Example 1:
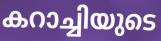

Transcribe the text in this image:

കറാച്ചിയുടെ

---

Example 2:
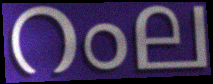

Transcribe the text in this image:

റംല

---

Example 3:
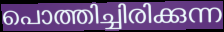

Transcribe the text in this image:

പൊത്തിച്ചിരിക്കുന്ന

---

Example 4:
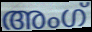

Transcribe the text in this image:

അംഗ്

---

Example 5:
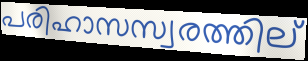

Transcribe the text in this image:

പരിഹാസസ്വരത്തില്